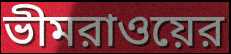
ভীমরাওয়ের